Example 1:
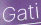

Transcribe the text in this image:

Gati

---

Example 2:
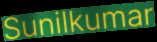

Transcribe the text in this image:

Sunilkumar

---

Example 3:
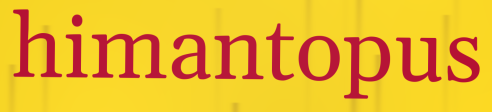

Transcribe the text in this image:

himantopus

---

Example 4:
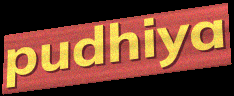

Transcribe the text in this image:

pudhiya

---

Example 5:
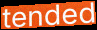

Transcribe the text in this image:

tended